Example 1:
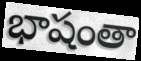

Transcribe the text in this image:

భాషంతా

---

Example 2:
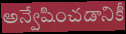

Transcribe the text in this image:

అన్వేషించడానికీ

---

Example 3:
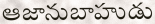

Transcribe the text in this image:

ఆజానుబాహుడు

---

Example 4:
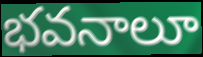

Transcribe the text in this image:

భవనాలూ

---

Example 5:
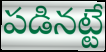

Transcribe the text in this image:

పడినట్టే